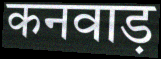
कनवाड़